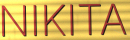
NIKITA